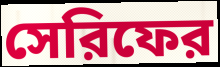
সেরিফের